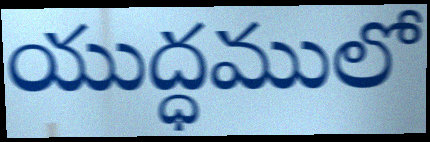
యుద్ధములో